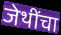
जेथींचा